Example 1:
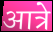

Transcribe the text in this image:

आत्रे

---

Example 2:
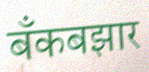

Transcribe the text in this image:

बँकबझार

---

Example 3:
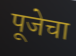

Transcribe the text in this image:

पूजेचा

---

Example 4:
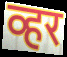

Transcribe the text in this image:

व्हर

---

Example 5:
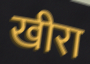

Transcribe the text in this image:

खीरा